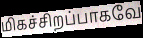
மிகச்சிறப்பாகவே